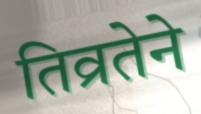
तिव्रतेने